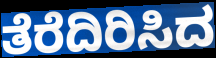
ತೆರೆದಿರಿಸಿದ